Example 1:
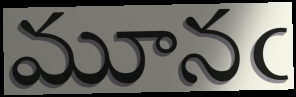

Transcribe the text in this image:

మూనఁ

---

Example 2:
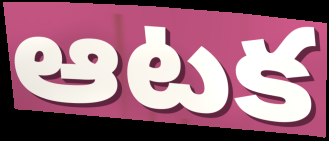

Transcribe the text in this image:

ఆటక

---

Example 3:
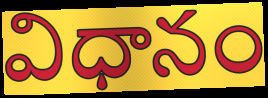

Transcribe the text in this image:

విధానం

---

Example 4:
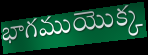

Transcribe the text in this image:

భాగముయొక్క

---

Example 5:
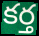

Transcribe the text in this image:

కర్త